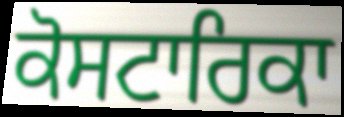
ਕੋਸਟਾਰਿਕਾ